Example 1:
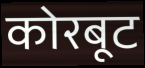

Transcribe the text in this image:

कोरबूट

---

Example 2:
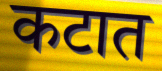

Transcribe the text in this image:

कटात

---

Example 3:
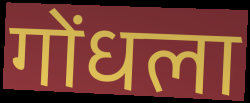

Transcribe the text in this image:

गोंधला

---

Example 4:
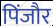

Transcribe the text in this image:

पिंजौर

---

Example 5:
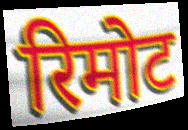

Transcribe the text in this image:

रिमोट